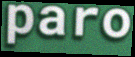
paro